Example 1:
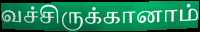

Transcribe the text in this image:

வச்சிருக்கானாம்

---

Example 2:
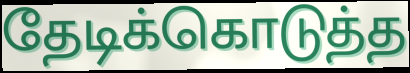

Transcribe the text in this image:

தேடிக்கொடுத்த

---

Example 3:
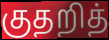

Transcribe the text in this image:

குதறித்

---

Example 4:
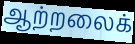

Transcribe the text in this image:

ஆற்றலைக்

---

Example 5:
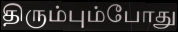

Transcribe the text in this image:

திரும்பும்போது